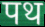
पथ